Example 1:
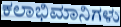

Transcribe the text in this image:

ಕಲಾಭಿಮಾನಿಗಳು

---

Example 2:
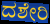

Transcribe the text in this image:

ದಶೇರಿ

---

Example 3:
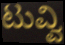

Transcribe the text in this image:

ಟುವ್ವಿ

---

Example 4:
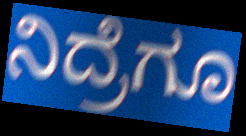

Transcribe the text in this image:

ನಿದ್ರೆಗೂ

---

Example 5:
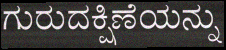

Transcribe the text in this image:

ಗುರುದಕ್ಷಿಣೆಯನ್ನು